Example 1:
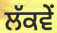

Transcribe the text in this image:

ਲੱਕਵੇਂ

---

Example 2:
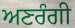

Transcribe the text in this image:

ਅਣਰੰਗੀ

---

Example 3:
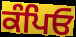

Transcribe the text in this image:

ਕੰਪਿਓ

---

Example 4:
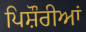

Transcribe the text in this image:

ਪਿਸ਼ੌਰੀਆਂ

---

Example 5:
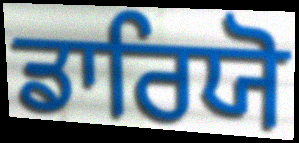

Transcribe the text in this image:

ਡਾਰਿਯੋ